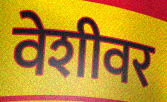
वेशीवर